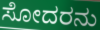
ಸೋದರನು